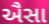
ઐસા